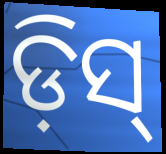
ଡ଼ିସ୍